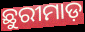
ଛୁରୀମାଡ଼